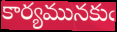
కార్యమునకుఁ